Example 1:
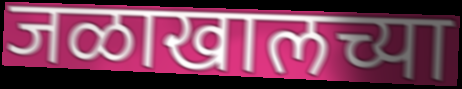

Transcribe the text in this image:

जळाखालच्या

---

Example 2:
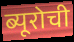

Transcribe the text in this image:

ब्यूरोची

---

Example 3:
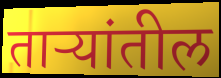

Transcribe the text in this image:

ताऱ्यांतील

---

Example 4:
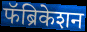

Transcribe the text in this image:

फॅब्रिकेशन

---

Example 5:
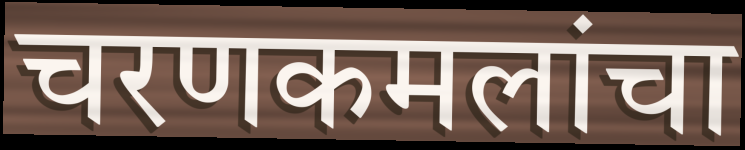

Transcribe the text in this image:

चरणकमलांचा